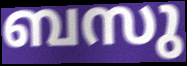
ബസു